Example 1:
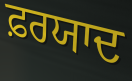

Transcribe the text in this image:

ਫ਼ਰਯਾਦ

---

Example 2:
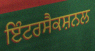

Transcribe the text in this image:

ਇੰਟਰਸੈਕਸ਼ਨਲ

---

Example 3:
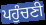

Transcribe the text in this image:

ਪਹੁੰਚਣੀ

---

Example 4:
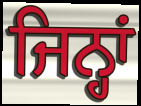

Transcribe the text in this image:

ਜਿਨ੍ਹਾਂ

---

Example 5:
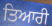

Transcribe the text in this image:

ਤਿਆਰੀ